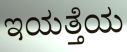
ಇಯತ್ತೆಯ